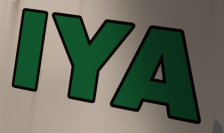
IYA